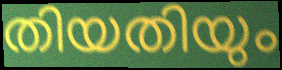
തിയതിയും